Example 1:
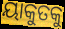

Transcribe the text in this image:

ୟାକୁତକୁ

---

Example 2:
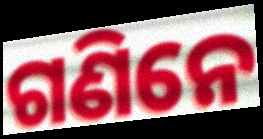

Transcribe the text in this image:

ଗଣିନେ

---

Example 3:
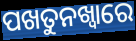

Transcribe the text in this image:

ପଖତୁନଖ୍ୱାରେ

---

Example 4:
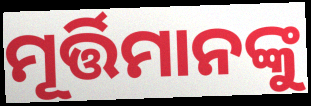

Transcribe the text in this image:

ମୂର୍ତ୍ତିମାନଙ୍କୁ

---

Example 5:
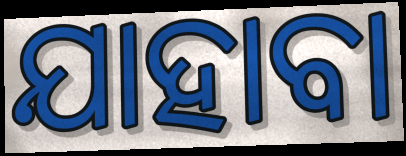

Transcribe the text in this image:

ଯାହାବା